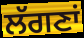
ਲੱਗਣਾਂ